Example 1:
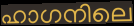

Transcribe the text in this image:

ഹാഗനിലെ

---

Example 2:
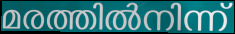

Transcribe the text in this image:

മരത്തിൽനിന്ന്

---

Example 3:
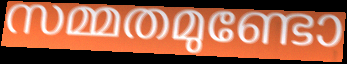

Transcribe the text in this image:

സമ്മതമുണ്ടോ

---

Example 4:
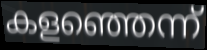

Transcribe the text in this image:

കളഞ്ഞെന്ന്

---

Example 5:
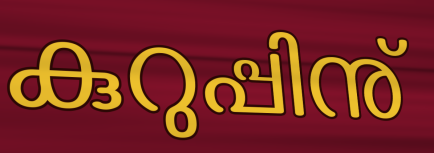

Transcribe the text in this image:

കുറുപ്പിനു്